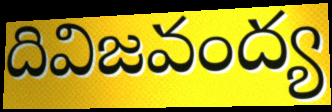
దివిజవంద్య